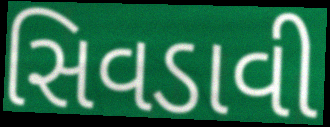
સિવડાવી